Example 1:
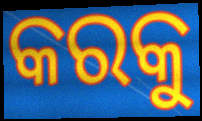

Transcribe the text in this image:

କରକୁ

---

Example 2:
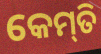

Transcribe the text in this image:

କେମ୍‍ତି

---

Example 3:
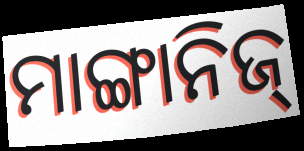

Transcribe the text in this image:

ମାଙ୍ଗାନିଜ୍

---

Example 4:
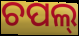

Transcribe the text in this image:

ଚପଲ୍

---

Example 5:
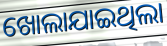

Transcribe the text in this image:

ଖୋଲାଯାଇଥିଲା